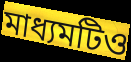
মাধ্যমটিও